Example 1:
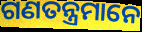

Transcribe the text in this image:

ଗଣତନ୍ତ୍ରମାନେ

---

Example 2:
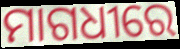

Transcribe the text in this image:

ମାଗଧୀରେ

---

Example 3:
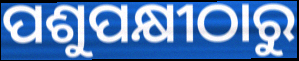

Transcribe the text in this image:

ପଶୁପକ୍ଷୀଠାରୁ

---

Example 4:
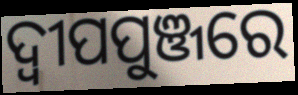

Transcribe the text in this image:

ଦ୍ୱୀପପୁଞ୍ଜରେ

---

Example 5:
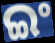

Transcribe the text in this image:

ଇଂ